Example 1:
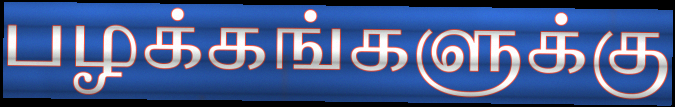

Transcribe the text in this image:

பழக்கங்களுக்கு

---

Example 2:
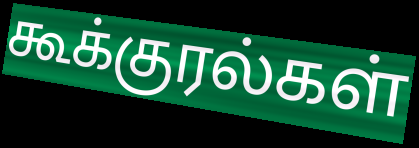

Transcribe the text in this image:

கூக்குரல்கள்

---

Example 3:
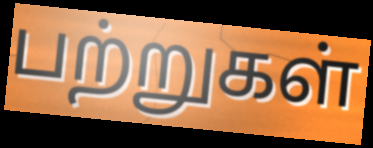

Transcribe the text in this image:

பற்றுகள்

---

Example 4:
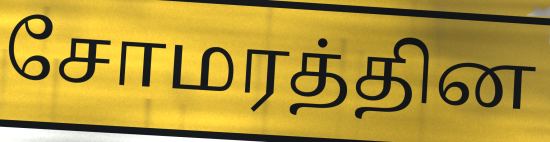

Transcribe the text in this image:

சோமரத்தின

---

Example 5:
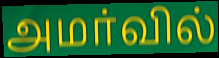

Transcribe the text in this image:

அமர்வில்